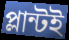
প্লান্টই